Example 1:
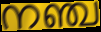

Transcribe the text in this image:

നഞ്ച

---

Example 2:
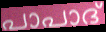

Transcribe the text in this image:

പാപാദ്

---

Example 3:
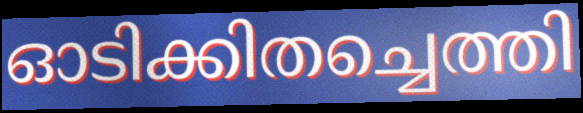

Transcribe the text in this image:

ഓടിക്കിതച്ചെത്തി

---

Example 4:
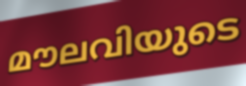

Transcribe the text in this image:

മൗലവിയുടെ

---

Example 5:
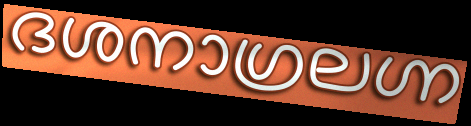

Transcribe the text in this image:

ദശനാഗ്രലഗ്ന